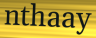
nthaay